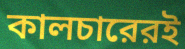
কালচারেরই